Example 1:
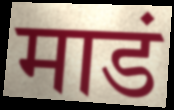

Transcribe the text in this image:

माडं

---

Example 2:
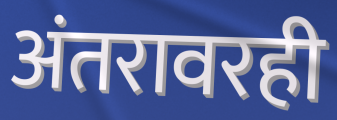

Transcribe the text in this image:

अंतरावरही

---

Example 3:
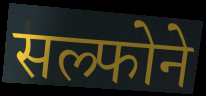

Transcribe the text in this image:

सल्फोने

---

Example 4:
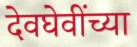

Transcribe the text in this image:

देवघेवींच्या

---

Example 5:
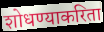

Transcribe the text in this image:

शोधण्याकरिता